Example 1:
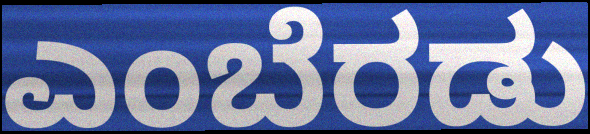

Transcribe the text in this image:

ಎಂಬೆರಡು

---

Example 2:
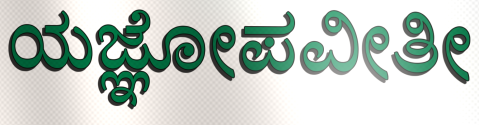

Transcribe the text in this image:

ಯಜ್ಞೋಪವೀತೀ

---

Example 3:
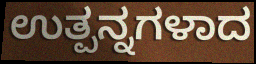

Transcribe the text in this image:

ಉತ್ಪನ್ನಗಳಾದ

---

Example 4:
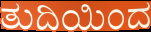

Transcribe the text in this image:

ತುದಿಯಿಂದ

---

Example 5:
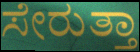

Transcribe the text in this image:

ಸೇರುತ್ತಾ